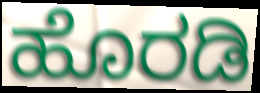
ಹೊರಡಿ